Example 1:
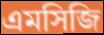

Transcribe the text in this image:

এমসিজি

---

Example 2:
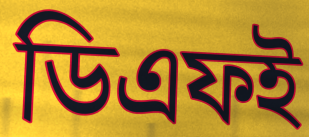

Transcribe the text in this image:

ডিএফই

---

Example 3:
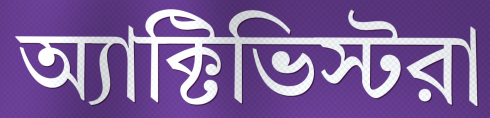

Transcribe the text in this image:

অ্যাক্টিভিস্টরা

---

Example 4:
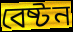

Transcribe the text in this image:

বেষ্টন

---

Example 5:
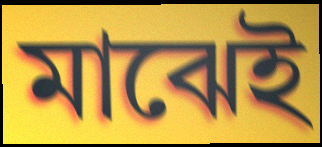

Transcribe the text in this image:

মাঝেই